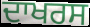
ਦਾਖਰਸ